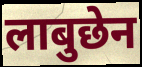
लाबुछेन